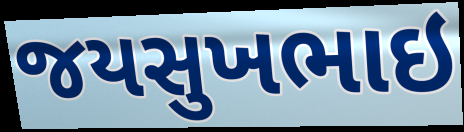
જયસુખભાઇ